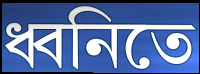
ধ্বনিতে